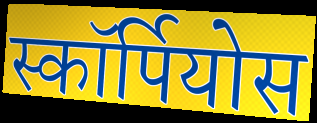
स्कॉर्पियोस